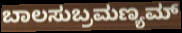
ಬಾಲಸುಬ್ರಮಣ್ಯಮ್